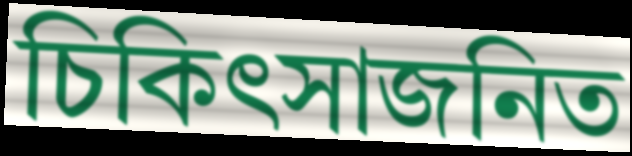
চিকিৎসাজনিত